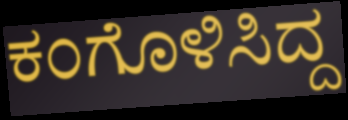
ಕಂಗೊಳಿಸಿದ್ದ